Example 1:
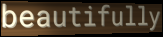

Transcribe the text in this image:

beautifully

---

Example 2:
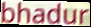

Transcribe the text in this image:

bhadur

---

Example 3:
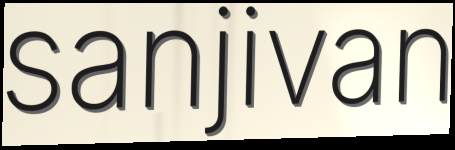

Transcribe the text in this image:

sanjivan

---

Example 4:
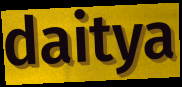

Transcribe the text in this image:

daitya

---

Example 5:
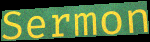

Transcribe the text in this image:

Sermon